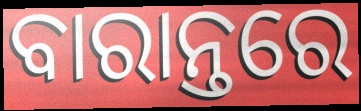
ବାରାନ୍ତରେ